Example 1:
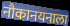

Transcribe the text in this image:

नौकानयनाला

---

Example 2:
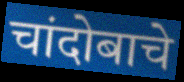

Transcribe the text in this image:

चांदोबाचे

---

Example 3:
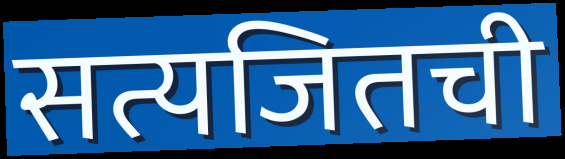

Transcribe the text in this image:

सत्यजितची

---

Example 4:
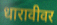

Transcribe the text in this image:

धारावीवर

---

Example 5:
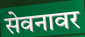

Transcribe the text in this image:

सेवनावर